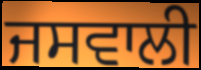
ਜਸਵਾਲੀ